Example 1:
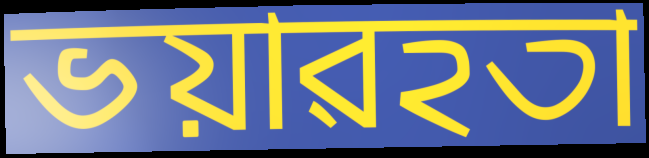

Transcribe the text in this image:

ভয়াৱহতা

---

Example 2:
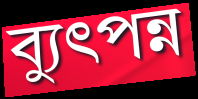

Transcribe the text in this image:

ব্যুৎপন্ন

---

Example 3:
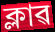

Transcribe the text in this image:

ক্লাৱ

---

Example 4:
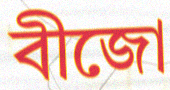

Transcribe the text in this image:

বীজো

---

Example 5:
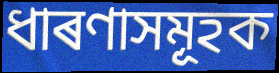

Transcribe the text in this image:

ধাৰণাসমূহক